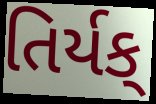
તિર્યક્